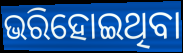
ଭରିହୋଇଥିବା